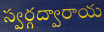
స్వర్గద్వారాయ